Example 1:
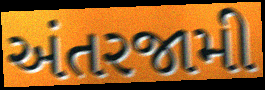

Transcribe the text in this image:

અંતરજામી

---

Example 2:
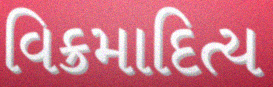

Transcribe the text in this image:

વિક્રમાદિત્ય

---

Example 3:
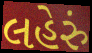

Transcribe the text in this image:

લહેરું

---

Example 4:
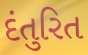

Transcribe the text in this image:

દંતુરિત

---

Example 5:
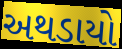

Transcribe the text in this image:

અથડાયો